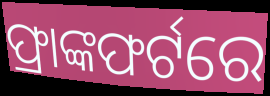
ଫ୍ରାଙ୍କଫର୍ଟରେ